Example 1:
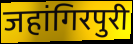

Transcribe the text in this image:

जहांगिरपुरी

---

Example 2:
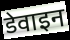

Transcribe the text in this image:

डेवाइन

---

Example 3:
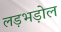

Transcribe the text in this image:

लड़भड़ोल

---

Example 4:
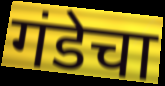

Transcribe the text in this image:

गंडेचा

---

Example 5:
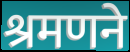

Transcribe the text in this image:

श्रमणने